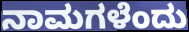
ನಾಮಗಳೆಂದು